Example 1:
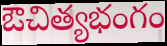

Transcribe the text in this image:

ఔచిత్యభంగం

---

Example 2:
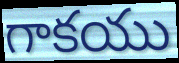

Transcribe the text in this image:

గాకయు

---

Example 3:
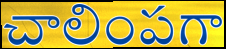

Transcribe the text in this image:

చాలింపగా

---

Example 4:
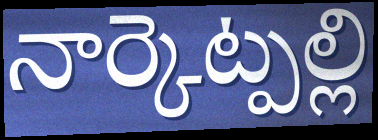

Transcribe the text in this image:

నార్కెట్పల్లి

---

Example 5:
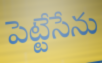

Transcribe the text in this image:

పెట్టేసేను